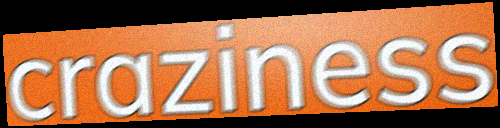
craziness